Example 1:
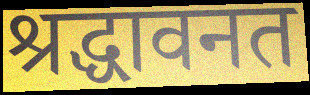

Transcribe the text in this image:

श्रद्धावनत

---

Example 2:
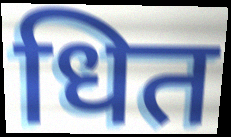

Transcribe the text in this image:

धित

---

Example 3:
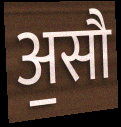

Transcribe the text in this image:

अ॒सौ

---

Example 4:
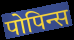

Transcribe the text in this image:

पोपिन्स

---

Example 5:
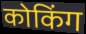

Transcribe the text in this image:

कोकिंग